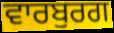
ਵਾਰਬੁਰਗ